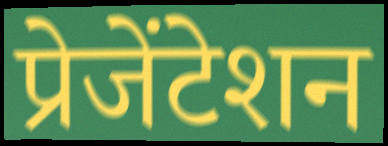
प्रेजेंटेशन